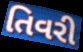
તિવરી